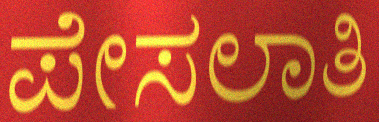
ಪೇಸಲಾತಿ